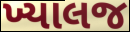
ખ્યાલજ